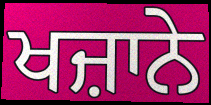
ਖਜ਼ਾਨੇ